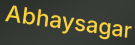
Abhaysagar